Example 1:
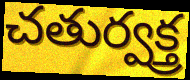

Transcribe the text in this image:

చతుర్వక్త్ర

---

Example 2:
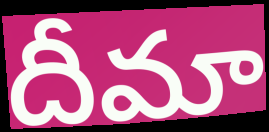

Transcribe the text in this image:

దీమా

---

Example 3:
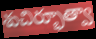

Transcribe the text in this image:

శుచిర్భూత్వా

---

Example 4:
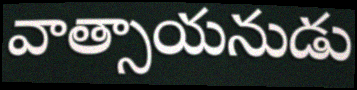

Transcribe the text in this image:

వాత్సాయనుడు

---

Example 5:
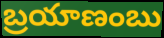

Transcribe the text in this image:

బ్రయాణంబు